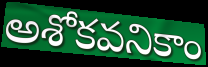
అశోకవనికాం